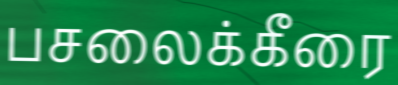
பசலைக்கீரை